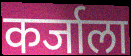
कर्जाला